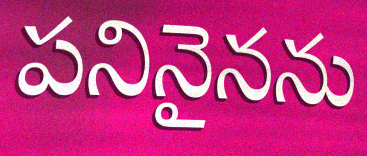
పనినైనను